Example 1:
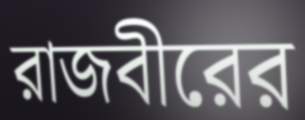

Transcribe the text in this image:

রাজবীরের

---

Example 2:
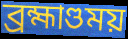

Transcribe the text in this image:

ব্রহ্মাণ্ডময়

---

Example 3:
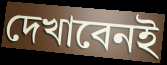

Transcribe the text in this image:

দেখাবেনই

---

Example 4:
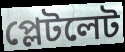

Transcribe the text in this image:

প্লেটলেট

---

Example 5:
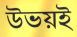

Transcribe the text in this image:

উভয়ই